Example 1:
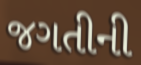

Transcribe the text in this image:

જગતીની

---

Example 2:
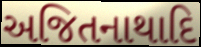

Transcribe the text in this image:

અજિતનાથાદિ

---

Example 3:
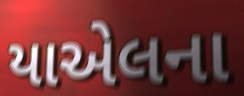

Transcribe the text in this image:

યાએલના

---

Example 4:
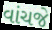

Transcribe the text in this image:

વાંચજે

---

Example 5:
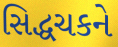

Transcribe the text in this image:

સિદ્ધચકને